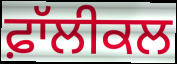
ਫ਼ਾੱਲੀਕਲ